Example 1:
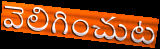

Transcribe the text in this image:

వెలిగించుట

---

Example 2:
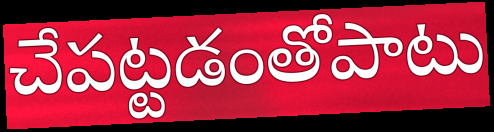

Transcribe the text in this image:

చేపట్టడంతోపాటు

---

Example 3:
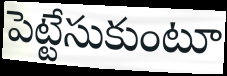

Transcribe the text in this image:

పెట్టేసుకుంటూ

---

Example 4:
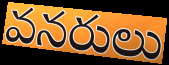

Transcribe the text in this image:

వనరులు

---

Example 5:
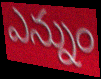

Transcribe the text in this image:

ఎన్నుం